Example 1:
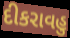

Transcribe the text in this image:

દીકરાવહુ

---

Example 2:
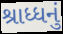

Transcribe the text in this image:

શ્રાધ્ધનું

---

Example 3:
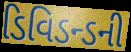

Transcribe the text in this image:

ડિવિડન્ડની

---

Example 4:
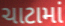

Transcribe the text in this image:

ચાટામાં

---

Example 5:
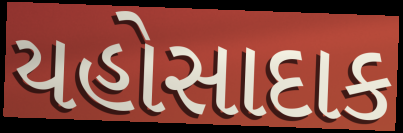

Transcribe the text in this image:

યહોસાદાક